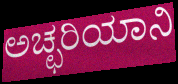
ಅಚ್ಛರಿಯಾನಿ